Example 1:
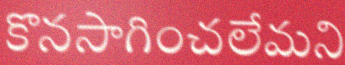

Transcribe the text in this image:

కొనసాగించలేమని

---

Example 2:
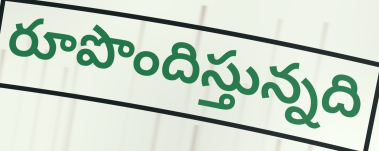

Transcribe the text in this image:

రూపొందిస్తున్నది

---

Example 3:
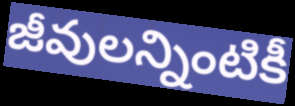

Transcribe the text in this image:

జీవులన్నింటికీ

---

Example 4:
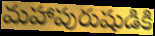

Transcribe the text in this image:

మహాపురుషుడికి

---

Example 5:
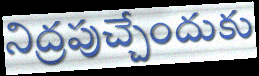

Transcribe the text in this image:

నిద్రపుచ్చేందుకు